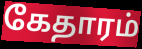
கேதாரம்